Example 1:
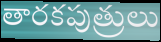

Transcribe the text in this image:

తారకపుత్రులు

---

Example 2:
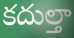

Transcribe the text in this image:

కదుల్తా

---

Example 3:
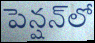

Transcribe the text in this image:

పెన్షన్‌లో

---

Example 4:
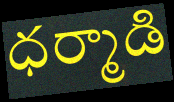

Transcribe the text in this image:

ధర్మాడి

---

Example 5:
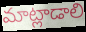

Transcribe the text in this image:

మాట్లాడాలి